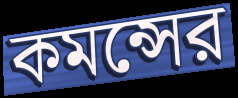
কমন্সের